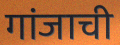
गांजाची